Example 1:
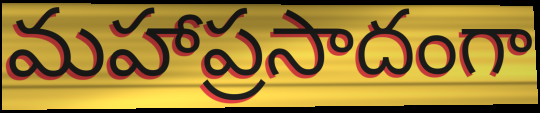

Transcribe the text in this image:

మహాప్రసాదంగా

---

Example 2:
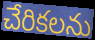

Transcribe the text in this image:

చేరికలను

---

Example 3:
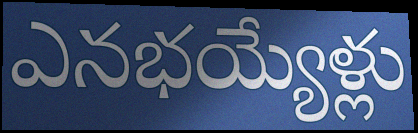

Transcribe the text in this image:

ఎనభయ్యేళ్లు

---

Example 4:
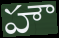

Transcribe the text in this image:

హౌ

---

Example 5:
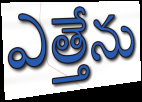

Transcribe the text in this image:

ఎత్తేను